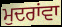
ਮੁਦਰਾਂਵਾ